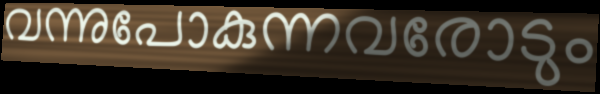
വന്നുപോകുന്നവരോടും